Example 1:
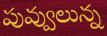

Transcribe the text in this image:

పువ్వులున్న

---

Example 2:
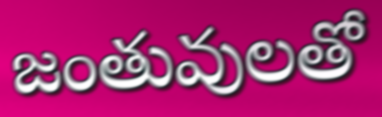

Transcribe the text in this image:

జంతువులతో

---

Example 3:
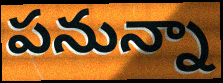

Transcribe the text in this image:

పనున్నా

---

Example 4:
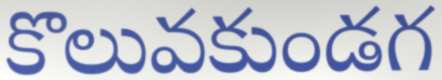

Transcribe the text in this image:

కొలువకుండగ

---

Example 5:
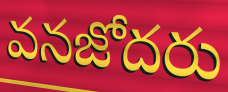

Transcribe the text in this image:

వనజోదరు